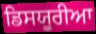
ਡਿਸਯੂਰੀਆ